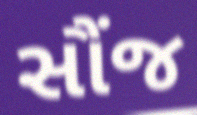
સૌંજ